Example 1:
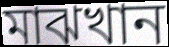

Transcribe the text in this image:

মাঝখান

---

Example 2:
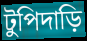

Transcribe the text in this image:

টুপিদাড়ি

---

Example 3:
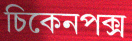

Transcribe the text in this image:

চিকেনপক্স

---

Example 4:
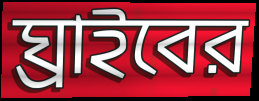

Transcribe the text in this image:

ঘ্রাইবের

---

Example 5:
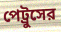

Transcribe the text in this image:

পেট্রুসের